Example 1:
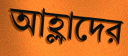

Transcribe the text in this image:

আহ্লাদের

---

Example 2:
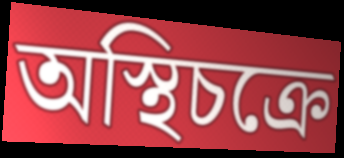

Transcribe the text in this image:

অস্থিচক্রে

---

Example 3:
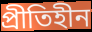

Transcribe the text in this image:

প্রীতিহীন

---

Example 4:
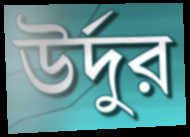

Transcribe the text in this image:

উর্দুর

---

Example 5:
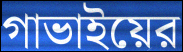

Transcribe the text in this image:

গাভাইয়ের